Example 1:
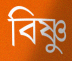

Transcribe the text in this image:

বিষ্ণু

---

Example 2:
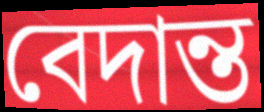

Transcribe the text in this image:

বেদান্ত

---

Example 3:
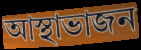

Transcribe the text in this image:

আস্থাভাজন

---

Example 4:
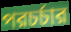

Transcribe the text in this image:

পরচর্চার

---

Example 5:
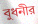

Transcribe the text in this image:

বুধনীর